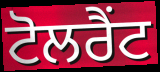
ਟੋਲਰੈਂਟ